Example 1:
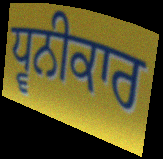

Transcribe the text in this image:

ਧ੍ਵਨੀਕਾਰ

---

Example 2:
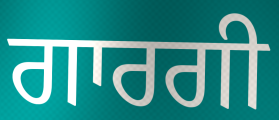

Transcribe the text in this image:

ਗਾਰਗੀ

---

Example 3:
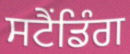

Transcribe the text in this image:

ਸਟੈਂਡਿੰਗ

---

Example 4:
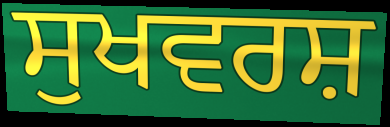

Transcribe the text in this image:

ਸੁਖਵਰਸ਼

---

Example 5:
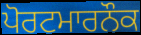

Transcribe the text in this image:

ਪੋਰਟਮਾਰਨੌਕ